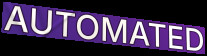
AUTOMATED